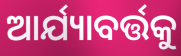
ଆର୍ଯ୍ୟାବର୍ତ୍ତକୁ